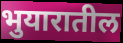
भुयारातील